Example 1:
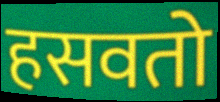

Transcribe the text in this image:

हसवतो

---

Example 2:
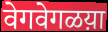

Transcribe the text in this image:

वेगवेगळय़ा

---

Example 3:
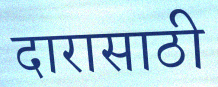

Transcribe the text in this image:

दारासाठी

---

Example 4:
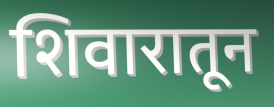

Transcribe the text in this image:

शिवारातून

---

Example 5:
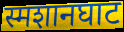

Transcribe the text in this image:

स्मशानघाट